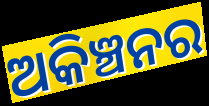
ଅକିଞ୍ଚନର